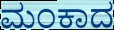
ಮಂಕಾದ